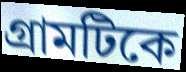
গ্রামটিকে